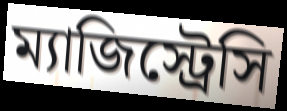
ম্যাজিস্ট্রেসি